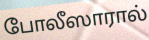
போலீஸாரால்